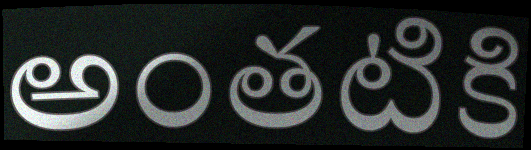
అంతటికి